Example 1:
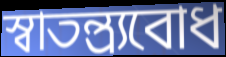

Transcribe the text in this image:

স্বাতন্ত্র্যবোধ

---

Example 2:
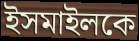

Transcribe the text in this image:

ইসমাইলকে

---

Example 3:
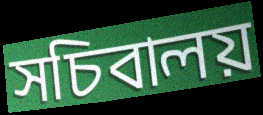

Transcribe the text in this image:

সচিবালয়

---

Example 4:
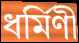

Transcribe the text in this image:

ধর্মিণী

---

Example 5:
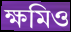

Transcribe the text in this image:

ক্ষমিও